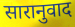
सारानुवाद